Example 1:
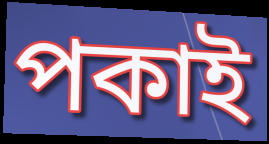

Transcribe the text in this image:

পকাই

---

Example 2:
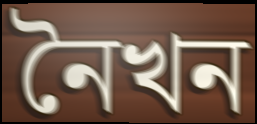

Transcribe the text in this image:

নৈখন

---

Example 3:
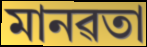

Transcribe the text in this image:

মানৱতা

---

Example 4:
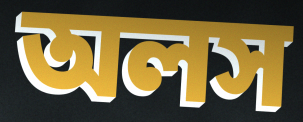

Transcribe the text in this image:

অলস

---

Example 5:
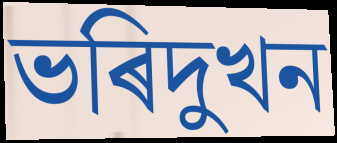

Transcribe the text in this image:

ভৰিদুখন